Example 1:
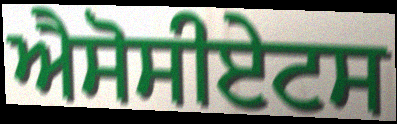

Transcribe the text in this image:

ਐਸੋਸੀਏਟਸ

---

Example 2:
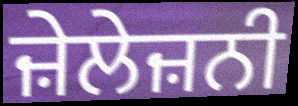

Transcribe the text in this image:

ਜ਼ੇਲੇਜ਼ਨੀ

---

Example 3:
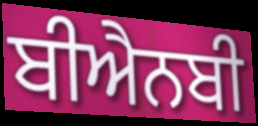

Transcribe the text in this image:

ਬੀਐਨਬੀ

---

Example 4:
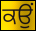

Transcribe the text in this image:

ਕਉਂ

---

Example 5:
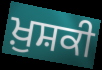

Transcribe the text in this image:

ਖ਼ੁਸ਼ਕੀ